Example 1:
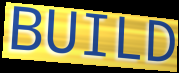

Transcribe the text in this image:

BUILD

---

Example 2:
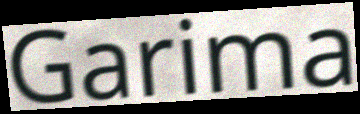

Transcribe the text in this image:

Garima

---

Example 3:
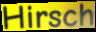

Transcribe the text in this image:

Hirsch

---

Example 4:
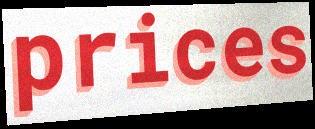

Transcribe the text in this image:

prices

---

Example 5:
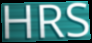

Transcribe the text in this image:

HRS